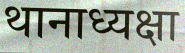
थानाध्यक्षा